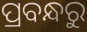
ପ୍ରବନ୍ଧରୁ